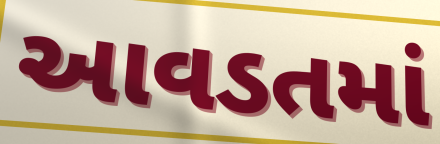
આવડતમાં